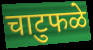
चाटुफळे